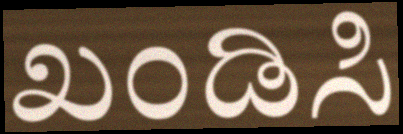
ಖಂಡಿಸಿ